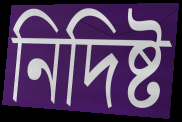
নিদিষ্ট